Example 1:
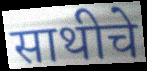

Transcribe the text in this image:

साथीचे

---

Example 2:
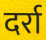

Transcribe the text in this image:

दर्रा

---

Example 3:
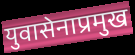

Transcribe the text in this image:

युवासेनाप्रमुख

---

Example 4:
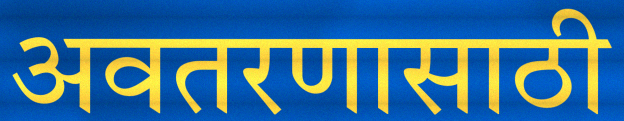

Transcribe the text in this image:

अवतरणासाठी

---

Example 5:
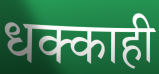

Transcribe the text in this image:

धक्काही